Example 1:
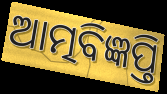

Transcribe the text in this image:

ଆତ୍ମବିଜ୍ଞପ୍ତି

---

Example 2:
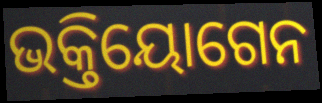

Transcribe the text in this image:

ଭକ୍ତିୟୋଗେନ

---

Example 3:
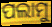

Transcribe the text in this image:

ପଲାମୁ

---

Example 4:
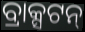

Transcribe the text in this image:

ବ୍ରାକ୍ସଟନ୍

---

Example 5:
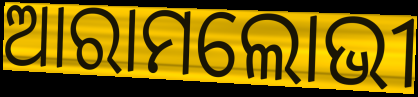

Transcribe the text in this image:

ଆରାମଲୋଭୀ